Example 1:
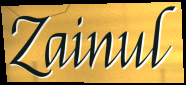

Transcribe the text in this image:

Zainul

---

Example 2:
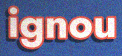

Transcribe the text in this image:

ignou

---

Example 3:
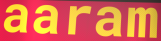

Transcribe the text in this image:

aaram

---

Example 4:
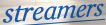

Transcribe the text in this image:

streamers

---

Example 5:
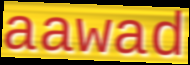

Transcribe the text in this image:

aawad